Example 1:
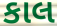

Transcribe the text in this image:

કાલ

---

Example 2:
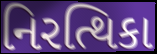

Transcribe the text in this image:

નિરત્થિકા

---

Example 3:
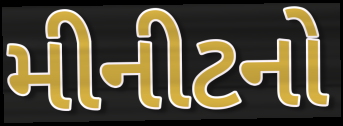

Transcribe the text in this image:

મીનીટનો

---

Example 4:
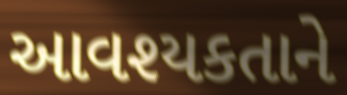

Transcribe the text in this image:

આવશ્યકતાને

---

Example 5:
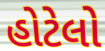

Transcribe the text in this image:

હોટેલો